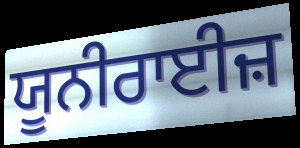
ਯੂਨੀਰਾਈਜ਼